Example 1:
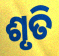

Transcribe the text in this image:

ଶୃତି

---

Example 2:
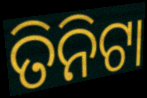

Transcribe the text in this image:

ତିନିଟା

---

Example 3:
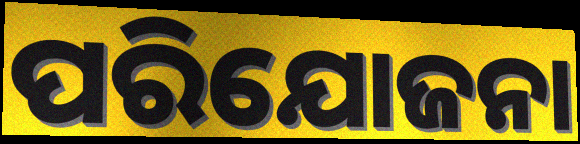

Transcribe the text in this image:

ପରିଯୋଜନା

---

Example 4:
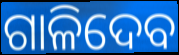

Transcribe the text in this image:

ଗାଳିଦେବ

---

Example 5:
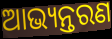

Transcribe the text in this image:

ଆଭ୍ୟନ୍ତରଣ